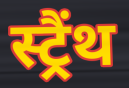
स्ट्रैंथ